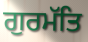
ਗੁਰਮੱਤਿ